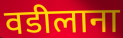
वडीलाना